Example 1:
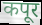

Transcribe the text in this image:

कपूर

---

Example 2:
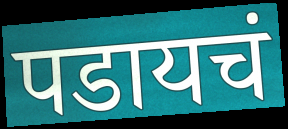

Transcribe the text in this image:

पडायचं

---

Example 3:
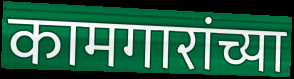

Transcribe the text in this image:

कामगारांच्या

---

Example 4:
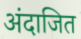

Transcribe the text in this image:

अंदाजित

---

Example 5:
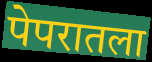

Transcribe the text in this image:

पेपरातला